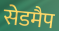
सेडमैप